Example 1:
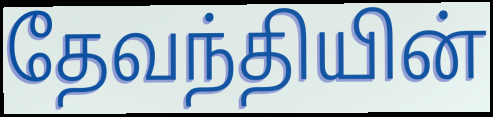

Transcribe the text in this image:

தேவந்தியின்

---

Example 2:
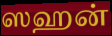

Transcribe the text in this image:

ஸஹன்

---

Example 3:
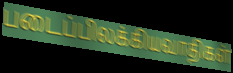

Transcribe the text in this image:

படைப்பிலக்கியவாதிகள்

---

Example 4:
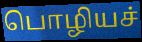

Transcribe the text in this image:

பொழியச்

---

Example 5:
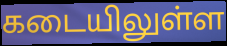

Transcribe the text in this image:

கடையிலுள்ள